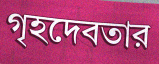
গৃহদেবতার